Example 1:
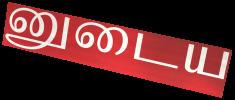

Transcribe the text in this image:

னுடைய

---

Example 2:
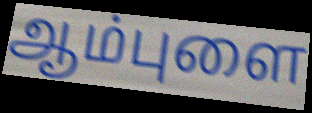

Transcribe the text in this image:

ஆம்புளை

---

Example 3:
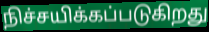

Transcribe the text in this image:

நிச்சயிக்கப்படுகிறது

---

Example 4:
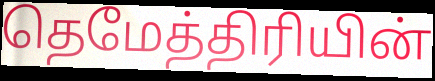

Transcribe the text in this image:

தெமேத்திரியின்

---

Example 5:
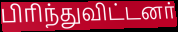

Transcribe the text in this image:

பிரிந்துவிட்டனர்